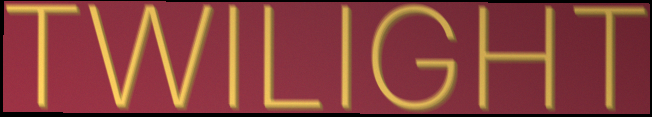
TWILIGHT